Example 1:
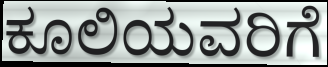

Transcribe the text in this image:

ಕೂಲಿಯವರಿಗೆ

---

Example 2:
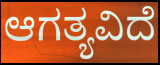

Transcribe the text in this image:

ಆಗತ್ಯವಿದೆ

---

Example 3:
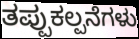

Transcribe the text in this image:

ತಪ್ಪುಕಲ್ಪನೆಗಳು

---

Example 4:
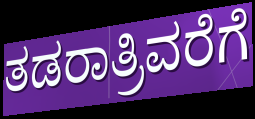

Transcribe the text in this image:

ತಡರಾತ್ರಿವರೆಗೆ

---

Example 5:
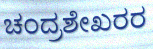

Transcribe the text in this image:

ಚಂದ್ರಶೇಖರರ